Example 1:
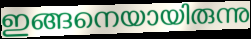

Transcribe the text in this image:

ഇങ്ങനെയായിരുന്നു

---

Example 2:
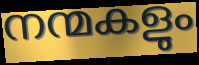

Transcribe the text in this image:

നന്മകളും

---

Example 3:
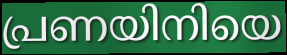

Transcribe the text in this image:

പ്രണയിനിയെ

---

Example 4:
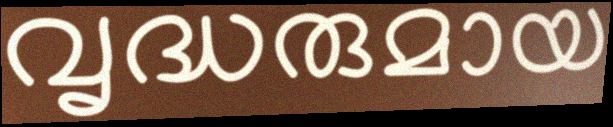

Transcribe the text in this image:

വൃദ്ധരുമായ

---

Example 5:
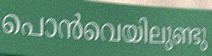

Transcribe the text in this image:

പൊൻവെയിലുണ്ടു